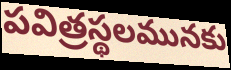
పవిత్రస్థలమునకు